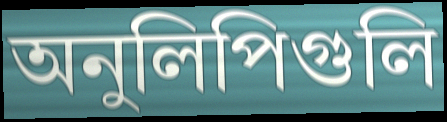
অনুলিপিগুলি